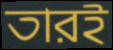
তারই